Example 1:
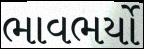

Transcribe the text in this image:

ભાવભર્યો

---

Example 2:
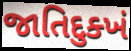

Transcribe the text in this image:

જાતિદુક્ખં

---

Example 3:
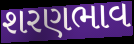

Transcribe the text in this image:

શરણભાવ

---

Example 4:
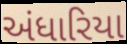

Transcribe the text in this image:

અંધારિયા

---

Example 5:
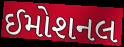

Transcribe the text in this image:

ઈમોશનલ